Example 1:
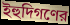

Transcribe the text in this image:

ইহুদিগণের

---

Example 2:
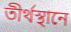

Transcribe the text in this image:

তীর্থস্থানে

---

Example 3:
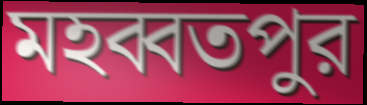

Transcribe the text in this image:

মহব্বতপুর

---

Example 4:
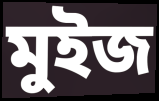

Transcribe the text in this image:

মুইজ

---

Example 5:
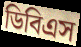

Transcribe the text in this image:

ডিবিএস